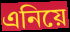
এনিয়ে